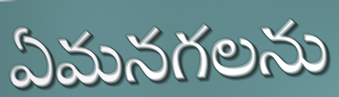
ఏమనగలను